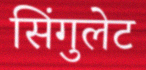
सिंगुलेट